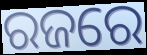
ରଜରେ